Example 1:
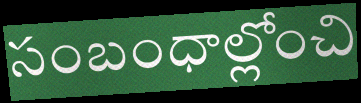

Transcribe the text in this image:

సంబంధాల్లోంచి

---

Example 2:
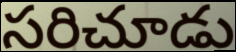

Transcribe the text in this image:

సరిచూడు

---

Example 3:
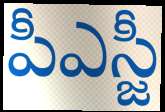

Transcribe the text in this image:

పీఎస్జీ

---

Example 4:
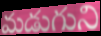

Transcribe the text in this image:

మడుగుని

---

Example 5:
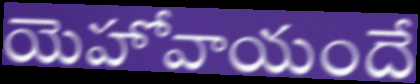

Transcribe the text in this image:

యెహోవాయందే